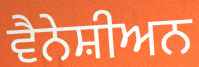
ਵੈਨੇਸ਼ੀਅਨ